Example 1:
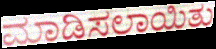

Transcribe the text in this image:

ಮಾಡಿಸಲಾಯಿತು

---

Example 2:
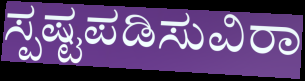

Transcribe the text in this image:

ಸ್ಪಷ್ಟಪಡಿಸುವಿರಾ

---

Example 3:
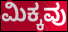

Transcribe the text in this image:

ಮಿಕ್ಕವು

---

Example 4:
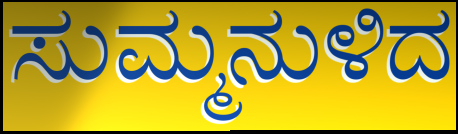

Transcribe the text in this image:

ಸುಮ್ಮನುಳಿದ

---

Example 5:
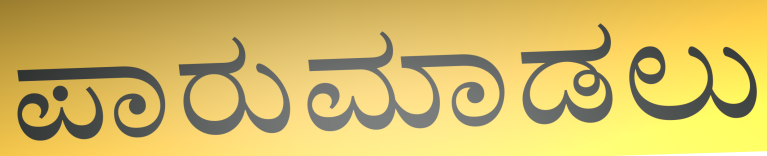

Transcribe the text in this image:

ಪಾರುಮಾಡಲು